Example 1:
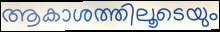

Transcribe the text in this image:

ആകാശത്തിലൂടെയും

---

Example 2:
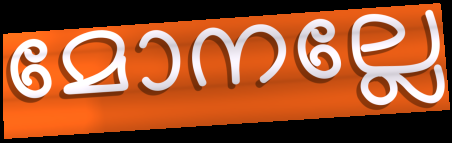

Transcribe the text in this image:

മോനല്ലേ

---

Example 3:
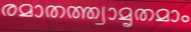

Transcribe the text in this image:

രമാതത്ത്വാമൃതമാം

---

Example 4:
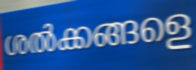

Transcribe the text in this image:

ശൽക്കങ്ങളെ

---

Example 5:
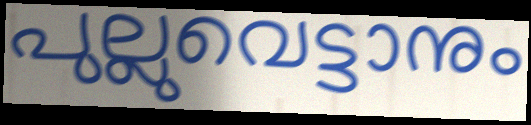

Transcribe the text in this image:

പുല്ലുവെട്ടാനും